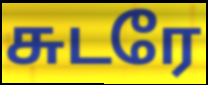
சுடரே